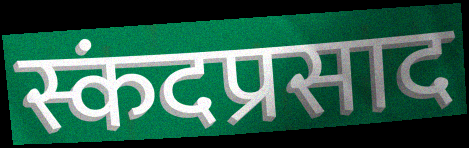
स्कंदप्रसाद